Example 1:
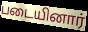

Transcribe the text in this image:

படையினார்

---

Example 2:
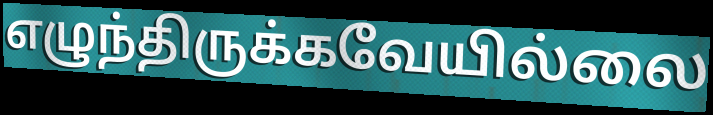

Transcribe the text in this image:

எழுந்திருக்கவேயில்லை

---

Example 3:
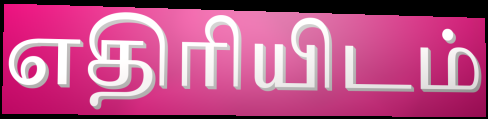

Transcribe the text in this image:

எதிரியிடம்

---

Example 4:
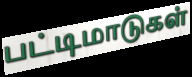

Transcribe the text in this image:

பட்டிமாடுகள்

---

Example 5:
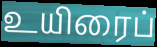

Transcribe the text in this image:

உயிரைப்